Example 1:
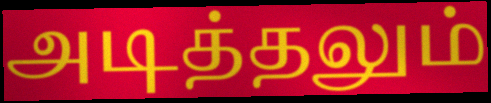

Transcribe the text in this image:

அடித்தலும்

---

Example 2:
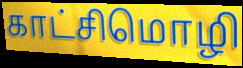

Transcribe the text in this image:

காட்சிமொழி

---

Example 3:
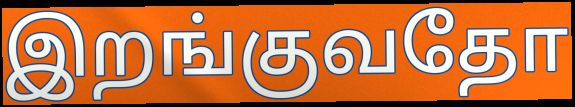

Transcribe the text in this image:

இறங்குவதோ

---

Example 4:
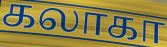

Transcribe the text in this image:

கலாகா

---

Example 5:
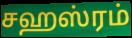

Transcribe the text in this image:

சஹஸ்ரம்